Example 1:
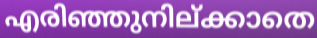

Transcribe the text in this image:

എരിഞ്ഞുനില്ക്കാതെ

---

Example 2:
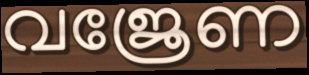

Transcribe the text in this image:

വജ്രേണ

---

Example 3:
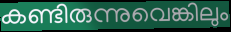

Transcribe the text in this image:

കണ്ടിരുന്നുവെങ്കിലും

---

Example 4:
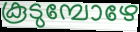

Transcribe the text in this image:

കൂടുമ്പോഴേ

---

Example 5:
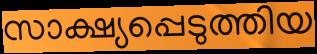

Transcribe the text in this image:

സാക്ഷ്യപ്പെടുത്തിയ